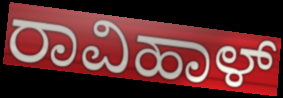
ರಾವಿಹಾಳ್